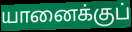
யானைக்குப்